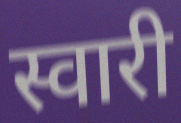
स्वारी